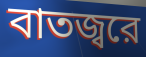
বাতজ্বরে